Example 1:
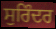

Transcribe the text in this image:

ਸੁਰਿੰਦਰ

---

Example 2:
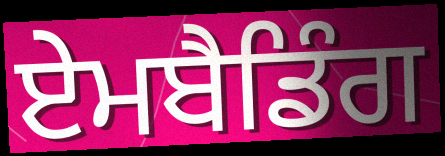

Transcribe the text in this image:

ਏਮਬੈਡਿੰਗ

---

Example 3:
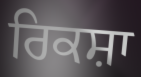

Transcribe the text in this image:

ਰਿਕਸ਼ਾ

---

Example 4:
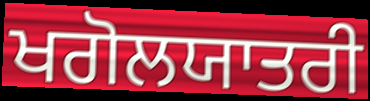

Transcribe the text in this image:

ਖਗੋਲਯਾਤਰੀ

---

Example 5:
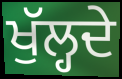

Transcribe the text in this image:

ਖੁੱਲ੍ਹਦੇ